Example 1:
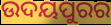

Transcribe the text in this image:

ଉଦୟପୁରର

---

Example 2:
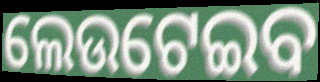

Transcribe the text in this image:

ଲେଉଟେଇବ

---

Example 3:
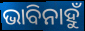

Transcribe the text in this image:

ଭାବିନାହୁଁ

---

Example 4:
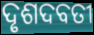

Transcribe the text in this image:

ଦୃଶଦବତୀ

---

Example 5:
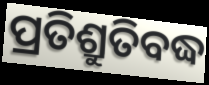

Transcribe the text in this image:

ପ୍ରତିଶ୍ରୁତିବଦ୍ଧ